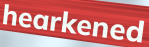
hearkened